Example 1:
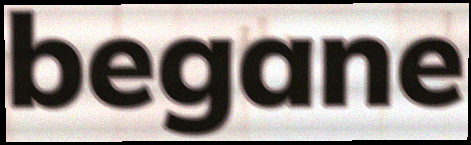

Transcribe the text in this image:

begane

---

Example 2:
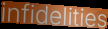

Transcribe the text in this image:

infidelities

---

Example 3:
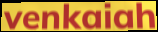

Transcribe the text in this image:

venkaiah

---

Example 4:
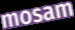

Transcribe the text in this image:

mosam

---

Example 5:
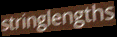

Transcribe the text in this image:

stringlengths